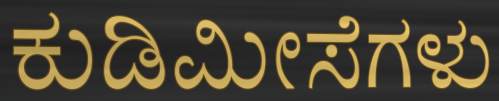
ಕುಡಿಮೀಸೆಗಳು